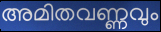
അമിതവണ്ണവും